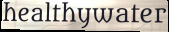
healthywater